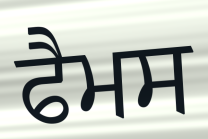
ਫੈਮਸ